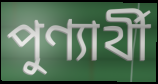
পুণ্যার্থী